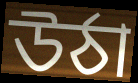
উঠা